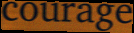
courage